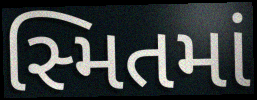
સ્મિતમાં